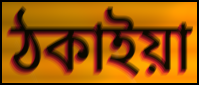
ঠকাইয়া